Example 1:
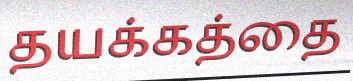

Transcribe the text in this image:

தயக்கத்தை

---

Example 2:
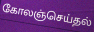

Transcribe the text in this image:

கோலஞ்செய்தல்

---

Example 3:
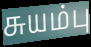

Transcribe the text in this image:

சுயம்பு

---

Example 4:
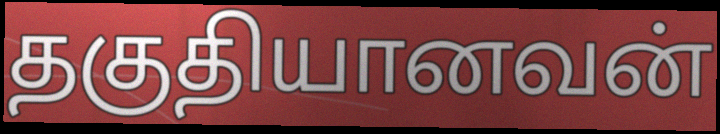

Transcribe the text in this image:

தகுதியானவன்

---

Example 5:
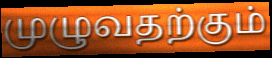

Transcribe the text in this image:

முழுவதற்கும்